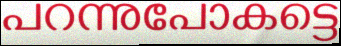
പറന്നുപോകട്ടെ